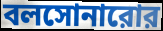
বলসোনারোর